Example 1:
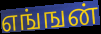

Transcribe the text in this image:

எங்ஙன்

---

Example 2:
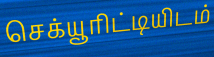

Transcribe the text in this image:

செக்யூரிட்டியிடம்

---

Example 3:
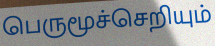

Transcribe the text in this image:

பெருமூச்செறியும்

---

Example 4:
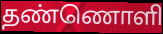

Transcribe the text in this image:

தண்ணொளி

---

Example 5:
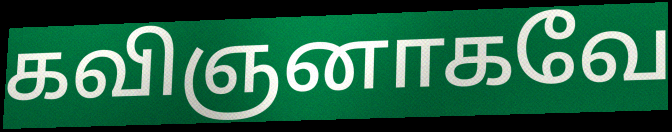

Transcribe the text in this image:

கவிஞனாகவே